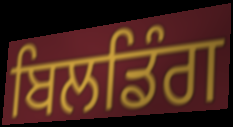
ਬਿਲਡਿੰਗ